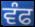
ਵੰਫ